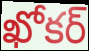
ఖోకర్